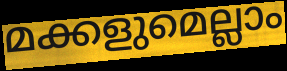
മക്കളുമെല്ലാം